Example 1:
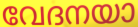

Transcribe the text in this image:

വേദനയാ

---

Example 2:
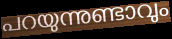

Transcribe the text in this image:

പറയുന്നുണ്ടാവും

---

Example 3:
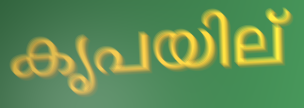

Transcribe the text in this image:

കൃപയില്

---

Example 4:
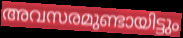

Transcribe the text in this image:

അവസരമുണ്ടായിട്ടും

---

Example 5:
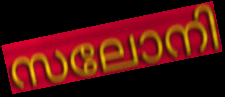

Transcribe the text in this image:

സലോനി